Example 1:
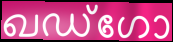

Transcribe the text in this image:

ഖഡ്ഗോ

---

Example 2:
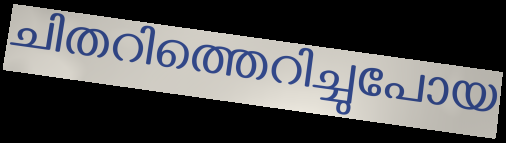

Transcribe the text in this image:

ചിതറിത്തെറിച്ചുപോയ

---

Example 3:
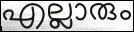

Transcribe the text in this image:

എല്ലാരും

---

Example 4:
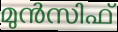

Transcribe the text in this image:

മുൻസിഫ്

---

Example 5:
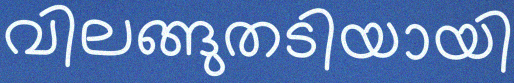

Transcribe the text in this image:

വിലങ്ങുതടിയായി